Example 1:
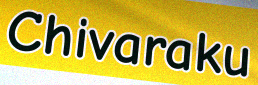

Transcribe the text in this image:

Chivaraku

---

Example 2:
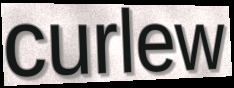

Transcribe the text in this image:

curlew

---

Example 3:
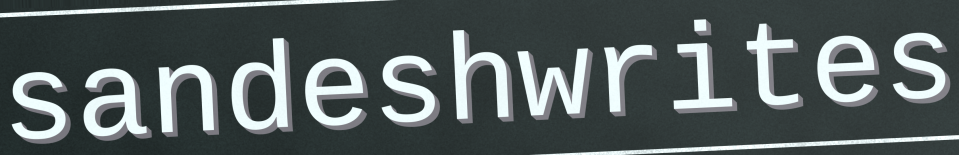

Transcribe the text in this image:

sandeshwrites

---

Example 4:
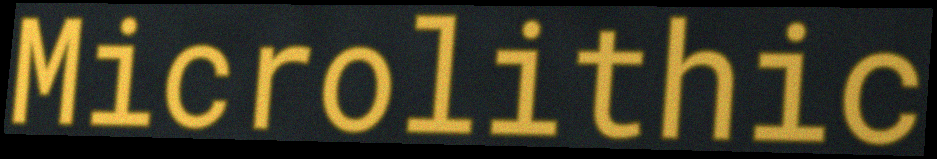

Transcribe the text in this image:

Microlithic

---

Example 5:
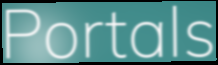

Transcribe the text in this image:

Portals